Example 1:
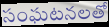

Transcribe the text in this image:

సంఘటనలతో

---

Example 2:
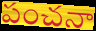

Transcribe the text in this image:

పంచనా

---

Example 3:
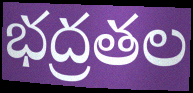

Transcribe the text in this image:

భద్రతల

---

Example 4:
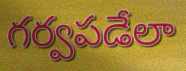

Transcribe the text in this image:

గర్వపడేలా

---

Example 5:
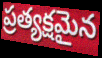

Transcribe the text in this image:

ప్రత్యక్షమైన